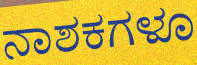
ನಾಶಕಗಳೂ